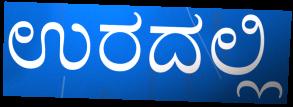
ಉರದಲ್ಲಿ